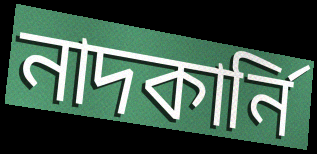
নাদকার্নি